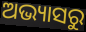
ଅଭ୍ୟାସରୁ